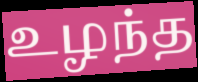
உழந்த